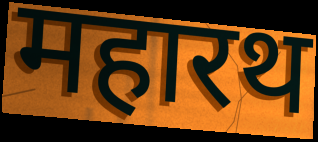
महारथ